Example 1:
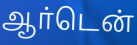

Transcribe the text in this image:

ஆர்டென்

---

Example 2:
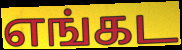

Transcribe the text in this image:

எங்கட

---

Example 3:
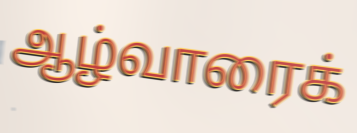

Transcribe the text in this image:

ஆழ்வாரைக்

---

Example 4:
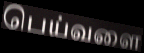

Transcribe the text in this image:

பெய்வளை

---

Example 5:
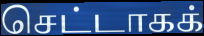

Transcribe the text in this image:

செட்டாகக்